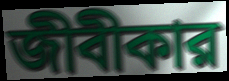
জীবীকার